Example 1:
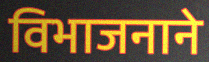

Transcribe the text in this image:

विभाजनाने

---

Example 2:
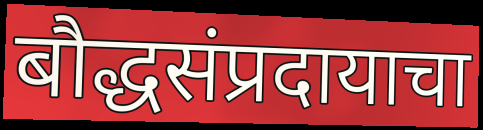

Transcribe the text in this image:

बौद्धसंप्रदायाचा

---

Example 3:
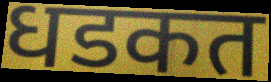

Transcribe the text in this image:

धडकत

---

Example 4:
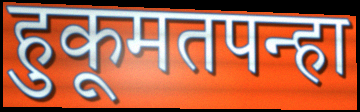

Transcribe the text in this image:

हुकूमतपन्हा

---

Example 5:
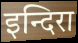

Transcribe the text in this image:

इन्दिरा